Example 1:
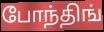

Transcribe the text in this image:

போந்திங்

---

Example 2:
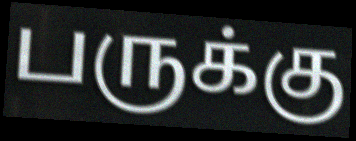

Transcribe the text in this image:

பருக்கு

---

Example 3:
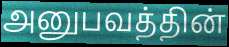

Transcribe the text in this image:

அனுபவத்தின்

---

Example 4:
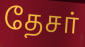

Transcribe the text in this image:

தேசர்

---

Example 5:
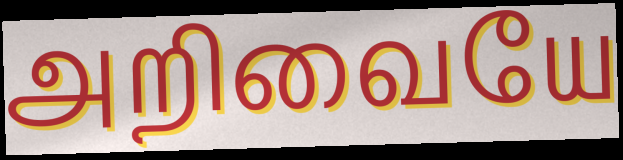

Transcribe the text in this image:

அறிவையே